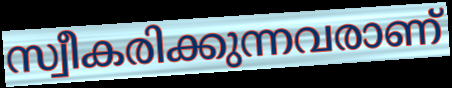
സ്വീകരിക്കുന്നവരാണ്